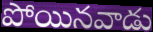
పోయినవాడు